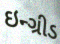
ઇન્ગ્રીડ